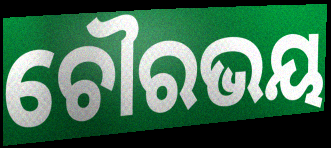
ଚୌରଭୟ